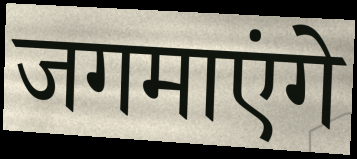
जगमाएंगे